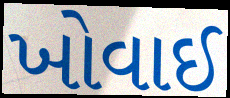
ખોવાઈ